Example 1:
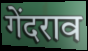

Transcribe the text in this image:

गेंदराव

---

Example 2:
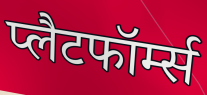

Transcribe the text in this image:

प्लैटफॉर्म्स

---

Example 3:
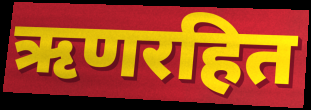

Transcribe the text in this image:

ऋणरहित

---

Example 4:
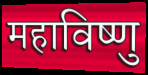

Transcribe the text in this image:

महाविष्णु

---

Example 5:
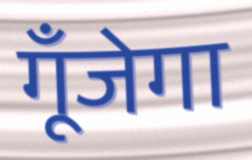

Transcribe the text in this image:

गूँजेगा